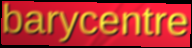
barycentre